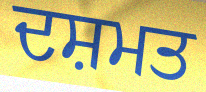
ਦਸ਼ਮਤ